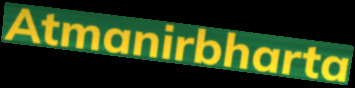
Atmanirbharta